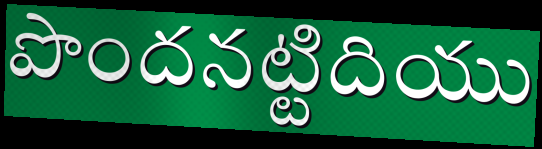
పొందనట్టిదియు